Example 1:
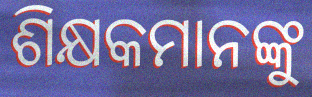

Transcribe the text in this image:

ଶିକ୍ଷକମାନଙ୍କୁ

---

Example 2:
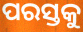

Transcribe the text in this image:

ପରସ୍ତକୁ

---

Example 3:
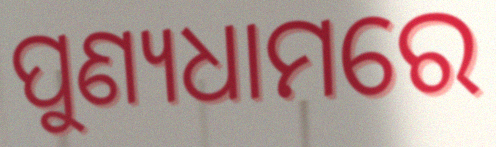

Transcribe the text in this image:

ପୁଣ୍ୟଧାମରେ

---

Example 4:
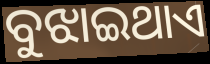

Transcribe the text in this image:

ବୁଝାଇଥାଏ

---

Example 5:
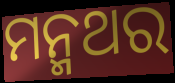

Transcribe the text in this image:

ମନ୍ମଥର